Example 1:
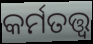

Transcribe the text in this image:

କର୍ମତତ୍ତ୍ୱ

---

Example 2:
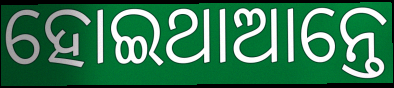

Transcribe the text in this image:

ହୋଇଥାଆନ୍ତେ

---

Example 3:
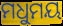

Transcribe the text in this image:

ମଧୁମୟ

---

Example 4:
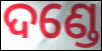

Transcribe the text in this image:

ଦଣ୍ଡେ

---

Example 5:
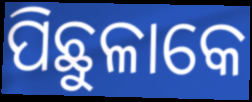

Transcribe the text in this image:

ପିଛୁଳାକେ